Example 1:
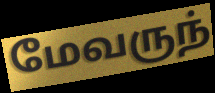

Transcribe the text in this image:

மேவருந்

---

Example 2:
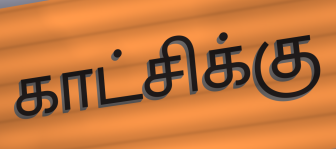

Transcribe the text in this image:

காட்சிக்கு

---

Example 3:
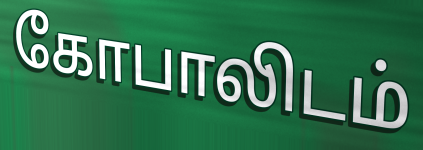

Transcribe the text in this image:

கோபாலிடம்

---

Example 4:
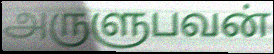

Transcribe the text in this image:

அருளுபவன்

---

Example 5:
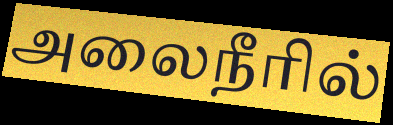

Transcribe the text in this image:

அலைநீரில்